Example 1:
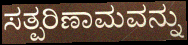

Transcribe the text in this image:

ಸತ್ಪರಿಣಾಮವನ್ನು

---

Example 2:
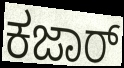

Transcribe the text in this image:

ಕಜಾರ್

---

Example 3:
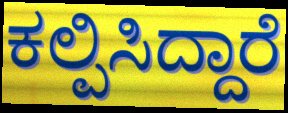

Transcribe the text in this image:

ಕಲ್ಪಿಸಿದ್ದಾರೆ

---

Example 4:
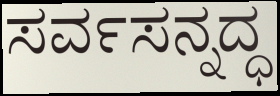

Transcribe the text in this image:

ಸರ್ವಸನ್ನದ್ಧ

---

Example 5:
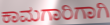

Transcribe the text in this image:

ಕಾಮಗಾರಿಗಾಗಿ